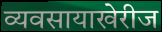
व्यवसायाखेरीज